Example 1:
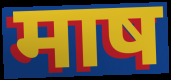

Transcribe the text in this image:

माष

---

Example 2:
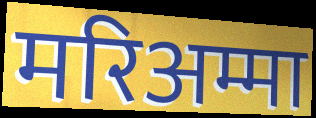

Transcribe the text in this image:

मरिअम्मा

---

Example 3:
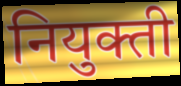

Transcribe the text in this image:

नियुक्ती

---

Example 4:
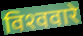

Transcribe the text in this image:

विश्ववारे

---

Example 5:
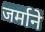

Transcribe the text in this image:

जर्माने